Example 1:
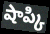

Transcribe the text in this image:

షాప్కి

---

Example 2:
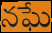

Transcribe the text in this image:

నఘే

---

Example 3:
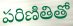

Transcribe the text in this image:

పరిణితితో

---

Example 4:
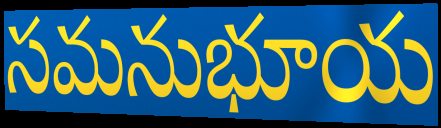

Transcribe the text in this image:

సమనుభూయ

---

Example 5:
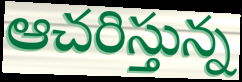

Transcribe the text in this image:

ఆచరిస్తున్న